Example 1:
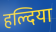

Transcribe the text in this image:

हल्दिया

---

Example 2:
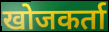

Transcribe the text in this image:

खोजकर्ता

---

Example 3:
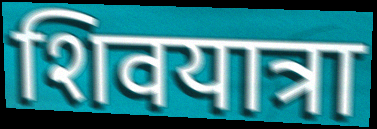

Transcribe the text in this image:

शिवयात्रा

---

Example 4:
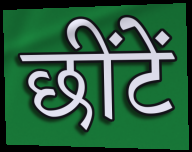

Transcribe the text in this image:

छींटें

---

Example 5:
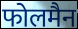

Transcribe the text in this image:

फोलमैन